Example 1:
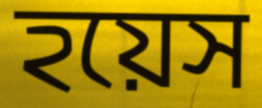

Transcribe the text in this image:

হয়েস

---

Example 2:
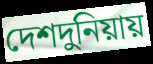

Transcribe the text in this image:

দেশদুনিয়ায়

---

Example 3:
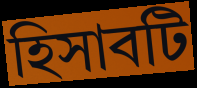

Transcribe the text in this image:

হিসাবটি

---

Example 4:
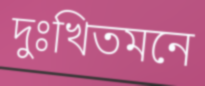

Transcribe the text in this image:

দুঃখিতমনে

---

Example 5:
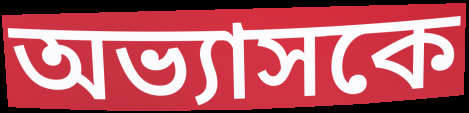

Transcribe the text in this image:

অভ্যাসকে